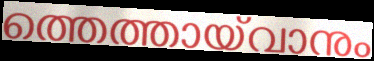
ത്തെത്തായ്‌വാനും